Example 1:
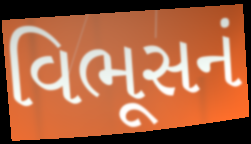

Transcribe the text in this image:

વિભૂસનં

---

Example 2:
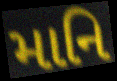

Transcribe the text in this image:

માનિ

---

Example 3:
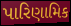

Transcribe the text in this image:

પારિણામિક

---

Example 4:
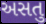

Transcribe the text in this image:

અસતુ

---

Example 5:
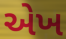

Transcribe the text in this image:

એખ